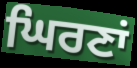
ਘਿਰਣਾਂ